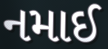
નમાઈ